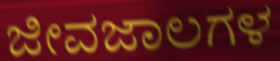
ಜೀವಜಾಲಗಳ